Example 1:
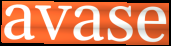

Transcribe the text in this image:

avase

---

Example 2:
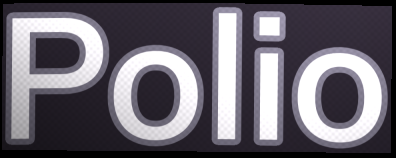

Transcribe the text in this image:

Polio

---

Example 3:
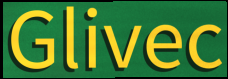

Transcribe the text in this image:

Glivec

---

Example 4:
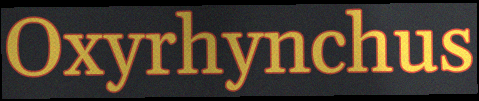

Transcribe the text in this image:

Oxyrhynchus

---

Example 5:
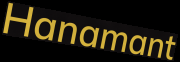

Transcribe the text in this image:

Hanamant